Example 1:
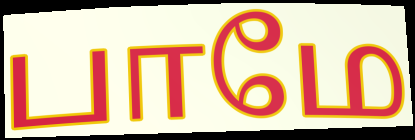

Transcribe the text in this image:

பாமே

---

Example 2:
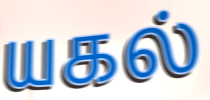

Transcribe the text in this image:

யகல்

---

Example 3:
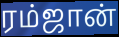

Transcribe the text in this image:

ரம்ஜான்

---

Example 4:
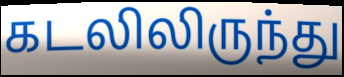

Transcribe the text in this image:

கடலிலிருந்து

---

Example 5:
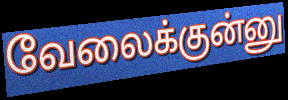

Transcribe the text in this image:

வேலைக்குன்னு